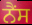
ਨੈਂਸ